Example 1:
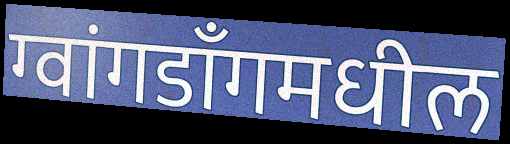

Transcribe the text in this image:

ग्वांगडाँगमधील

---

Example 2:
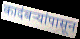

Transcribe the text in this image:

कादंबऱ्यांपासून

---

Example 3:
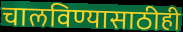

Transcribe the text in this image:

चालविण्यासाठीही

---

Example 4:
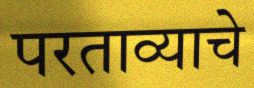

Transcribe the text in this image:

परताव्याचे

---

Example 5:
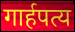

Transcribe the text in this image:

गार्हपत्य